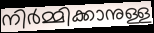
നിർമ്മിക്കാനുള്ള